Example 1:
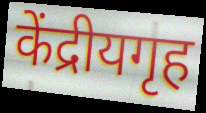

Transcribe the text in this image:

केंद्रीयगृह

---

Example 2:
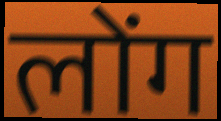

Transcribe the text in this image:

लोंग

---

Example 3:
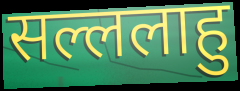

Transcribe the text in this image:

सल्ललाहु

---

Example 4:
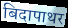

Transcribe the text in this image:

बिदापाथर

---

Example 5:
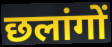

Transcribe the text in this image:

छलांगों